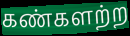
கண்களற்ற